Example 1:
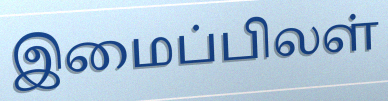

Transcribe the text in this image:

இமைப்பிலள்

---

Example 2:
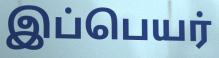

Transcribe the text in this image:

இப்பெயர்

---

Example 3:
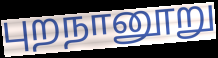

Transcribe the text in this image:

புறநானூறு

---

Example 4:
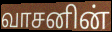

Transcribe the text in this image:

வாசனின்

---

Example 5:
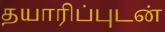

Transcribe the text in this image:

தயாரிப்புடன்